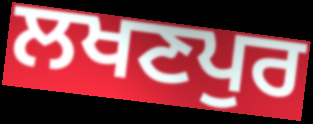
ਲਖਣਪੁਰ